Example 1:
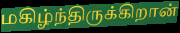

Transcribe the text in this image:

மகிழ்ந்திருக்கிறான்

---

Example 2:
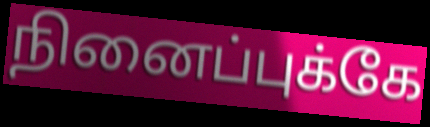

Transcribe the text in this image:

நினைப்புக்கே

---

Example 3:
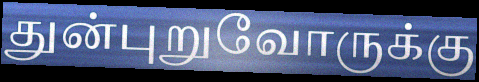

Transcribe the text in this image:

துன்புறுவோருக்கு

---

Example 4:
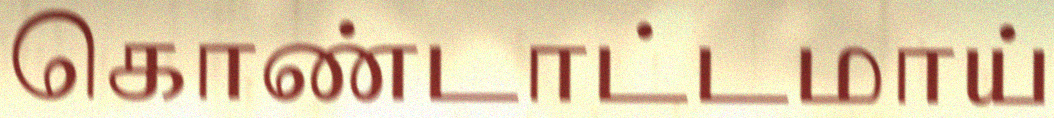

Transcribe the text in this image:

கொண்டாட்டமாய்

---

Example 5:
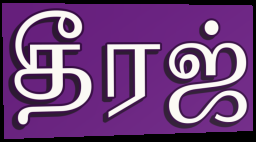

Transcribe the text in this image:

தீரஜ்